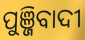
ପୁଞ୍ଜିବାଦୀ